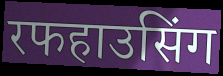
रफहाउसिंग